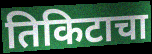
तिकिटाचा